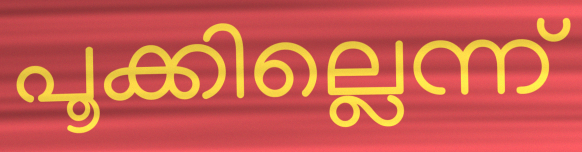
പൂക്കില്ലെന്ന്